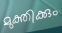
മുക്തിക്കും